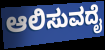
ಆಲಿಸುವದೈ